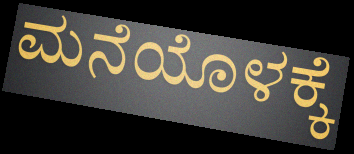
ಮನೆಯೊಳಕ್ಕೆ